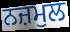
ਨਜ਼ਮੁਲ